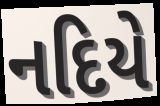
નદિયે